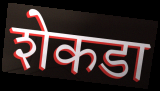
शेकडा